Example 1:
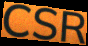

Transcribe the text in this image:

CSR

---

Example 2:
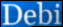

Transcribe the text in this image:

Debi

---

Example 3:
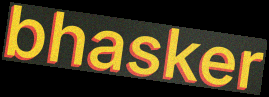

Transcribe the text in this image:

bhasker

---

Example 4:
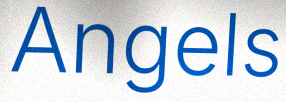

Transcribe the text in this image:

Angels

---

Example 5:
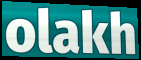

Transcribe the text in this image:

olakh